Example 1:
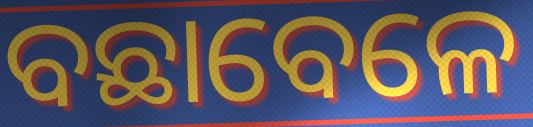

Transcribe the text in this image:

ବଛାବେଳେ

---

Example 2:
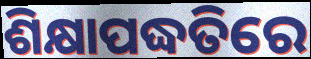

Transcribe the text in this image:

ଶିକ୍ଷାପଦ୍ଧତିରେ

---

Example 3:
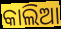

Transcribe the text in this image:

କାଲିଆ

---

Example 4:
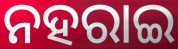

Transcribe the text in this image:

ନହରାଇ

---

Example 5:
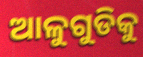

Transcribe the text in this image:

ଆଳୁଗୁଡିକୁ